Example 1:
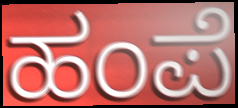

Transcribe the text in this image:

ಹಂಪೆ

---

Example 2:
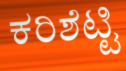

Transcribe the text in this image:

ಕರಿಶೆಟ್ಟಿ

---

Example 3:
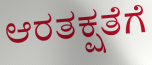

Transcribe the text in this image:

ಆರತಕ್ಷತೆಗೆ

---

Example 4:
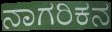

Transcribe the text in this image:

ನಾಗರಿಕನ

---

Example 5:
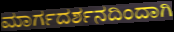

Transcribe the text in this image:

ಮಾರ್ಗದರ್ಶನದಿಂದಾಗಿ